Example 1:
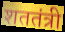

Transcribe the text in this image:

शततंत्री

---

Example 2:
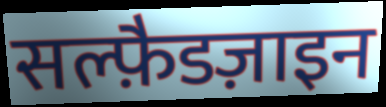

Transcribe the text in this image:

सल्फ़ैडज़ाइन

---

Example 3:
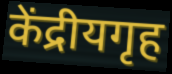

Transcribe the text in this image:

केंद्रीयगृह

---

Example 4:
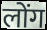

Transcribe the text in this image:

लोंग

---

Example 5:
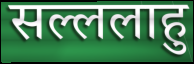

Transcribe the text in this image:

सल्ललाहु